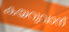
കയറുവാന്